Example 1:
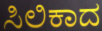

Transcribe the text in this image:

ಸಿಲಿಕಾದ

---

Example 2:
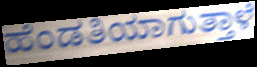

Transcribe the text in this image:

ಹೆಂಡತಿಯಾಗುತ್ತಾಳೆ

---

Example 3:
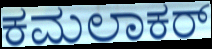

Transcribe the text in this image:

ಕಮಲಾಕರ್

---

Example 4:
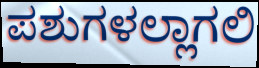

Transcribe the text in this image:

ಪಶುಗಳಲ್ಲಾಗಲಿ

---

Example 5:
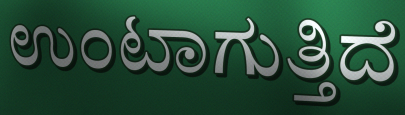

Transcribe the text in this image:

ಉಂಟಾಗುತ್ತಿದೆ